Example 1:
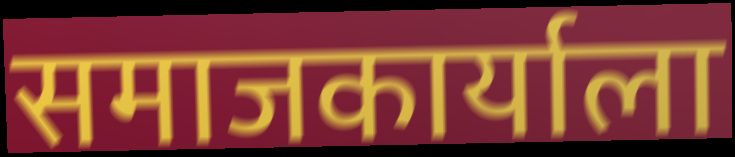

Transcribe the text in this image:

समाजकार्याला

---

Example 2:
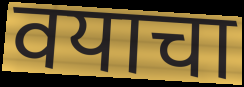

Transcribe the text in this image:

वयाचा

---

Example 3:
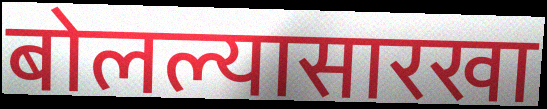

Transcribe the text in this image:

बोलल्यासारखा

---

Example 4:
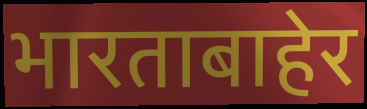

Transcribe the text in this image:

भारताबाहेर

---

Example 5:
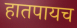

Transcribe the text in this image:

हातपायच